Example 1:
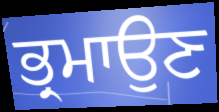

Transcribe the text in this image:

ਭ੍ਰਮਾਉਣ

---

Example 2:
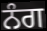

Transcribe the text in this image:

ਨੰਗ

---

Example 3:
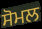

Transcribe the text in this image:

ਸੋਮਲ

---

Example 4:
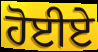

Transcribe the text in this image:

ਹੋਈਏ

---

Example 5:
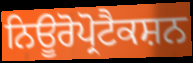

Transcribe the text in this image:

ਨਿਊਰੋਪ੍ਰੋਟੈਕਸ਼ਨ